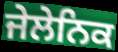
ਜੇਲੇਨਿਕ